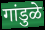
गांडुळे